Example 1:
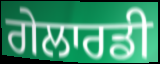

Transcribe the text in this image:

ਗੇਲਾਰਡੀ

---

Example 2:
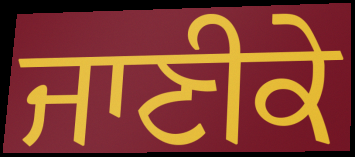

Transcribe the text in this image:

ਜਾਣੀਕੇ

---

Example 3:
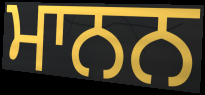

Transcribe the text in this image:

ਮਾਨਨ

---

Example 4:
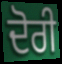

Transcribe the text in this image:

ਦੋਰੀ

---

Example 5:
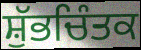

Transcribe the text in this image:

ਸ਼ੁੱਭਚਿੰਤਕ